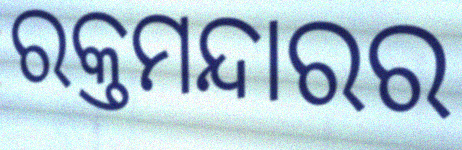
ରକ୍ତମନ୍ଦାରର